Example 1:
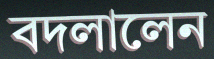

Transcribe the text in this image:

বদলালেন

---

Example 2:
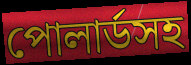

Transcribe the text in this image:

পোলার্ডসহ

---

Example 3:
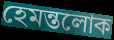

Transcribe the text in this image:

হেমন্তলোক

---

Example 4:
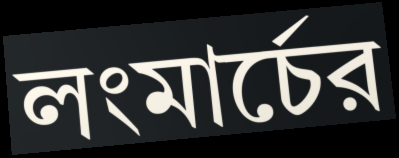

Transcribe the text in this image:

লংমার্চের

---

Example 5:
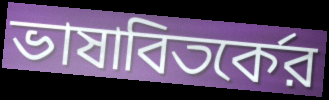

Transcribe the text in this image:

ভাষাবিতর্কের